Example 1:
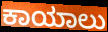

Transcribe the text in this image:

ಕಾಯಾಲು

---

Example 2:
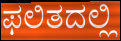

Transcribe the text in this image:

ಫಲಿತದಲ್ಲಿ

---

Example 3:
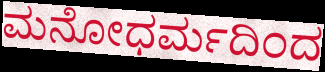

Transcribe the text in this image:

ಮನೋಧರ್ಮದಿಂದ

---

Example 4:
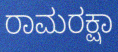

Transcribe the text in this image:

ರಾಮರಕ್ಷಾ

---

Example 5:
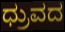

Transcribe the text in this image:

ಧ್ರುವದ